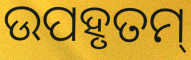
ଉପହୃତମ୍